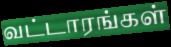
வட்டாரங்கள்